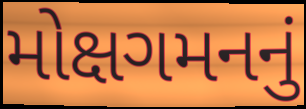
મોક્ષગમનનું